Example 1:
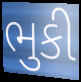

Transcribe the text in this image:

ભુકી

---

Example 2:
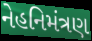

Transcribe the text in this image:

નેહનિમંત્રણ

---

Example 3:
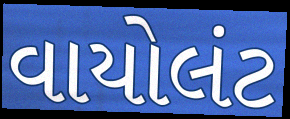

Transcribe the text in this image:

વાયોલંટ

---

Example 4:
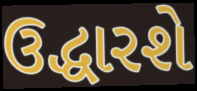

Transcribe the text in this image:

ઉદ્ધારશે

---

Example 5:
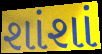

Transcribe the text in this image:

શાંશાં